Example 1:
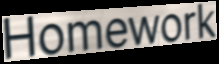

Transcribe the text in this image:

Homework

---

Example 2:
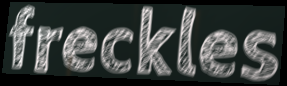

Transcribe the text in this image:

freckles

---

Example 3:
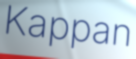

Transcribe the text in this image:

Kappan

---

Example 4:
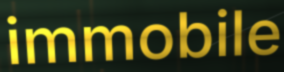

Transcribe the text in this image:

immobile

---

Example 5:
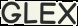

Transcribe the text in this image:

GLEX